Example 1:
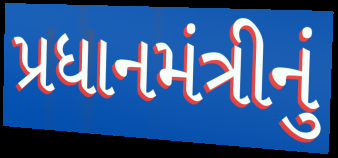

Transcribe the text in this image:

પ્રધાનમંત્રીનું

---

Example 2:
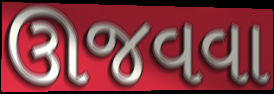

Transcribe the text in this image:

ઊજવવા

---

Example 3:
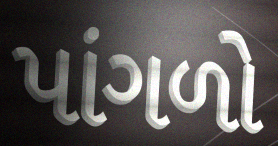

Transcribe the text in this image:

પાંગળો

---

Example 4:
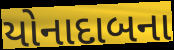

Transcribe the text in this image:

યોનાદાબના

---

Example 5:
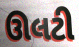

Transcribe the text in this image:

ઊલટી